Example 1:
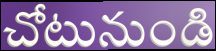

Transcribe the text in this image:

చోటునుండి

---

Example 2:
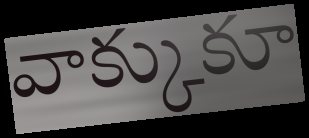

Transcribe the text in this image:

వాక్కుకూ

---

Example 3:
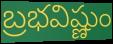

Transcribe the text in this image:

బ్రభవిష్ణుం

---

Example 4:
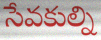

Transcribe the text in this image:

సేవకుల్ని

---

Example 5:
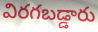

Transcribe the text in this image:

విరగబడ్డారు